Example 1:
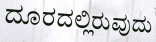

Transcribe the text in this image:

ದೂರದಲ್ಲಿರುವುದು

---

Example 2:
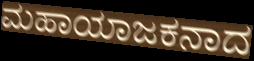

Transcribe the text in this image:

ಮಹಾಯಾಜಕನಾದ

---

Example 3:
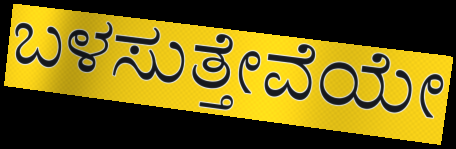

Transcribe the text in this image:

ಬಳಸುತ್ತೇವೆಯೇ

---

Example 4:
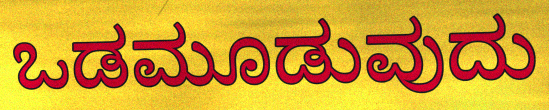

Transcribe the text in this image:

ಒಡಮೂಡುವುದು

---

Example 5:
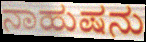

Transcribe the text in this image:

ನಾಹುಷನು